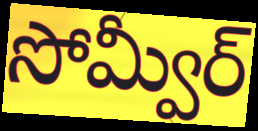
సోమ్వీర్